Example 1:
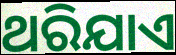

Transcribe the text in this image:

ଥରିଯାଏ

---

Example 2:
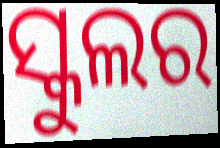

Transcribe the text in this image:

ସ୍କୁଲର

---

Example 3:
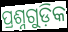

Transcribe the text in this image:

ପ୍ରଶ୍ନଗୁଡ଼ିକ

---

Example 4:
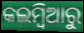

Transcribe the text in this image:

କଲମ୍ବିଆରୁ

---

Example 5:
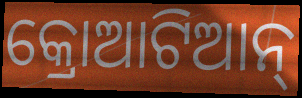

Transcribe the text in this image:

କ୍ରୋଆଟିଆନ୍